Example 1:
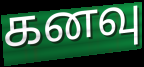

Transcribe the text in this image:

கனவு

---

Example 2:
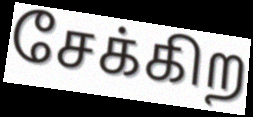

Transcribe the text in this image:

சேக்கிற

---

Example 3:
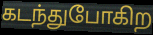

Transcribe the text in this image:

கடந்துபோகிற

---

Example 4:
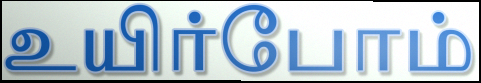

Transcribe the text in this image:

உயிர்போம்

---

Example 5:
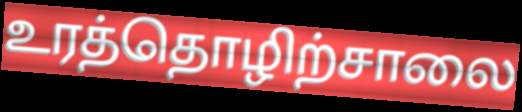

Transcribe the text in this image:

உரத்தொழிற்சாலை